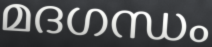
മദഗന്ധം